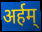
अर्हम्